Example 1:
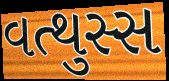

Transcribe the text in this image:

વત્થુસ્સ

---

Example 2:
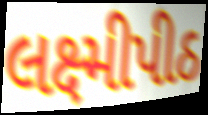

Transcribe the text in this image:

લક્ષ્મીપીઠ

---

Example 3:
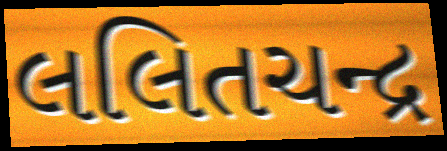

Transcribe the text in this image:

લલિતચન્દ્ર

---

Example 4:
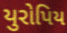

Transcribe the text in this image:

યુરોપિય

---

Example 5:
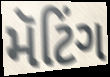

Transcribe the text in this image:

મૅટિંગ